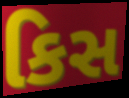
કિસ